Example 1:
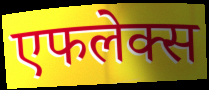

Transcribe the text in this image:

एफलेक्स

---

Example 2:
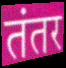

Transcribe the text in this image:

तंतर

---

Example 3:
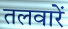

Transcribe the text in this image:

तलवारें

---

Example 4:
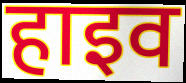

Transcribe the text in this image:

हाइव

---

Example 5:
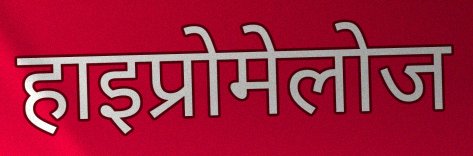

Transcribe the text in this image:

हाइप्रोमेलोज